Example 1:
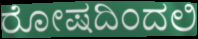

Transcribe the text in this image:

ರೋಷದಿಂದಲಿ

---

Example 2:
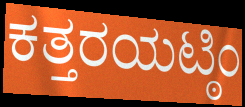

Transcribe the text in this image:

ಕತ್ತರಯಟ್ಠಿಂ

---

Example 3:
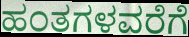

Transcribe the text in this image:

ಹಂತಗಳವರೆಗೆ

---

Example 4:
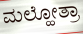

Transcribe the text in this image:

ಮಲ್ಹೋತ್ರಾ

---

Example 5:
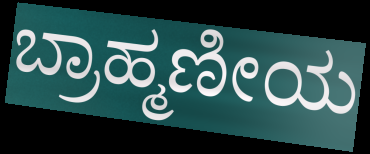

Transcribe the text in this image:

ಬ್ರಾಹ್ಮಣೀಯ